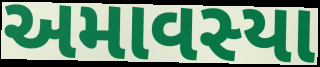
અમાવસ્યા